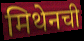
मिथेनची